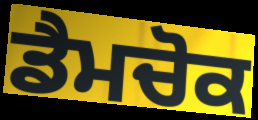
ਡੈਮਚੋਕ